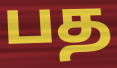
பத